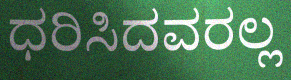
ಧರಿಸಿದವರಲ್ಲ